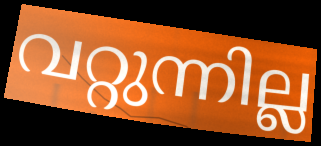
വറ്റുന്നില്ല